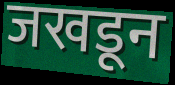
जखडून